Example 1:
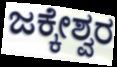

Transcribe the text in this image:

ಜಕ್ಕೇಶ್ವರ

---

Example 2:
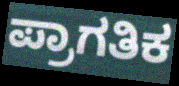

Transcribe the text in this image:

ಪ್ರಾಗತಿಕ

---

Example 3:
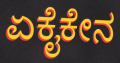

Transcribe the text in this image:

ಏಕೈಕೇನ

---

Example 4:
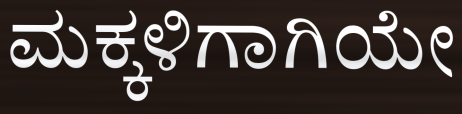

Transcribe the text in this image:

ಮಕ್ಕಳಿಗಾಗಿಯೇ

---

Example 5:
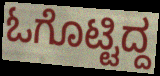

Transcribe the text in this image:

ಓಗೊಟ್ಟಿದ್ದ